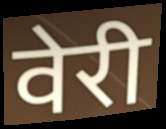
वेरी